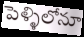
పెళ్ళిలోనూ